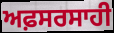
ਅਫ਼ਸਰਸਾਹੀ